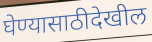
घेण्यासाठीदेखील